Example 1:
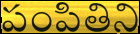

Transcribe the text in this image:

పంపితిని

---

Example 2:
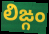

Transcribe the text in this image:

లిఙ్గం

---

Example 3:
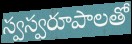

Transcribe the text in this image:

స్వస్వరూపాలతో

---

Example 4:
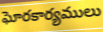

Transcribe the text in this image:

ఘోరకార్యములు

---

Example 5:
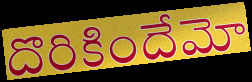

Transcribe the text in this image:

దొరికిందేమో